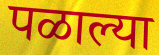
पळाल्या